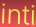
inti